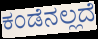
ಕಂಡೆನಲ್ಲದೆ